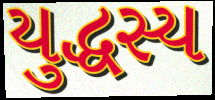
યુદ્ધસ્ય